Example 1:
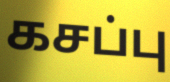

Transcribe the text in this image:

கசப்பு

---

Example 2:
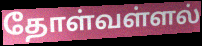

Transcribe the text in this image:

தோள்வள்ளல்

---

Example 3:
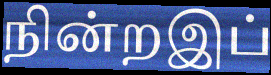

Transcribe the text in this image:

நின்றஇப்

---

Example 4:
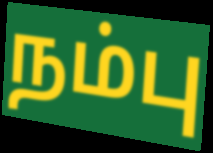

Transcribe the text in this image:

நம்பு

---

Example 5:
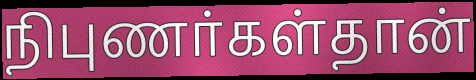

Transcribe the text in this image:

நிபுணர்கள்தான்